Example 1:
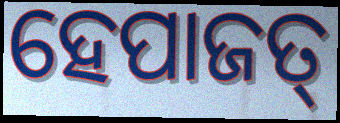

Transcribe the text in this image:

ହେପାଜତ୍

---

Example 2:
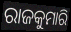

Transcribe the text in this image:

ରାଜକୁମାରି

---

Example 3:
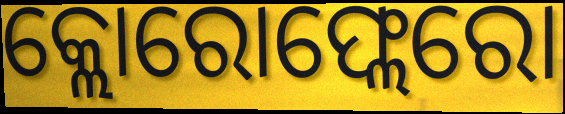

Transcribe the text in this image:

କ୍ଲୋରୋଫ୍ଲେରୋ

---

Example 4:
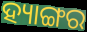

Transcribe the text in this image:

ହ୍ୟାଙ୍ଗର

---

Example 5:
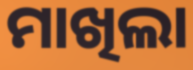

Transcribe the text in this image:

ମାଖିଲା